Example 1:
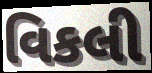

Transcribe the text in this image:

વિકલી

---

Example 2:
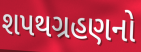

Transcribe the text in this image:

શપથગ્રહણનો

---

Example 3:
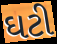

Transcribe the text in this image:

ઘટી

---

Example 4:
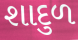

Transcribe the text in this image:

શાદુળ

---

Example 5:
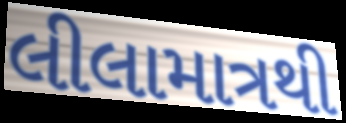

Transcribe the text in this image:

લીલામાત્રથી